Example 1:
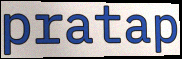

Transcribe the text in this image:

pratap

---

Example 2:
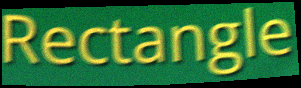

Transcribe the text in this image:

Rectangle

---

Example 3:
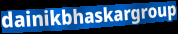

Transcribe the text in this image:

dainikbhaskargroup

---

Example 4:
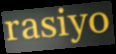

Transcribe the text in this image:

rasiyo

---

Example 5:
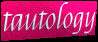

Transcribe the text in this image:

tautology